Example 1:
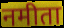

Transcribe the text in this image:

नमीता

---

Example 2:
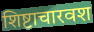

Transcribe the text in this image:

शिष्टाचारवश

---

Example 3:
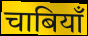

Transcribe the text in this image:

चाबियाँ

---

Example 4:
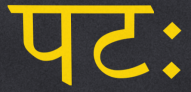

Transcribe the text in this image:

पटः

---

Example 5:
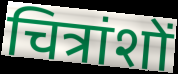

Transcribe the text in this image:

चित्रांशों